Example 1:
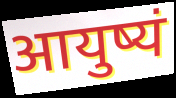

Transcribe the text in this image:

आयुष्यं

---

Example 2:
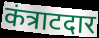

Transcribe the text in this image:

कंत्राटदार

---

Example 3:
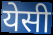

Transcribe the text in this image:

येसी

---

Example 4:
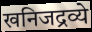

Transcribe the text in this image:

खनिजद्रव्ये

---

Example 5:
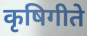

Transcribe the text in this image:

कृषिगीते